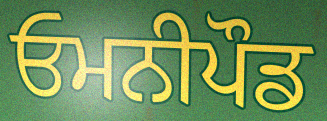
ਓਮਨੀਪੌਡ